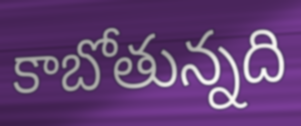
కాబోతున్నది